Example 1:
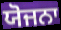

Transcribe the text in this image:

ਯੋਜਨਾ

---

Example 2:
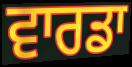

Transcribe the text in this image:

ਵਾਰਡਾ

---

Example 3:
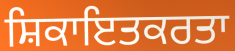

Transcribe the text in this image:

ਸ਼ਿਕਾਇਤਕਰਤਾ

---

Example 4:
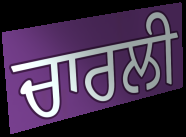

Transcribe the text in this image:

ਚਾਰਲੀ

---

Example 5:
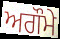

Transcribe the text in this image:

ਅਗੌਮੇ